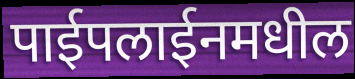
पाईपलाईनमधील